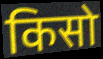
किसो